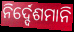
ନିର୍ଦ୍ଦେଶମାନି